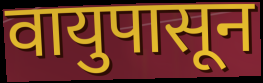
वायुपासून